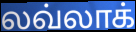
லவ்லாக்